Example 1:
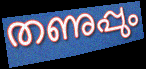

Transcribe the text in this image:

തണുപ്പും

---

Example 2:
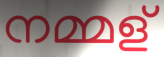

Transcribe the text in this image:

നമ്മള്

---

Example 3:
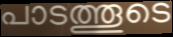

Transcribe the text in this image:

പാടത്തൂടെ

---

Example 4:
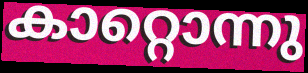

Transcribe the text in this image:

കാറ്റൊന്നു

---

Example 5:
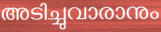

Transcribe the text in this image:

അടിച്ചുവാരാനും